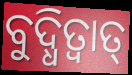
ବୁଦ୍ଧିତ୍ୱାତ୍